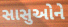
સાસુઓને